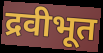
द्रवीभूत